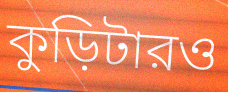
কুড়িটারও